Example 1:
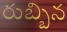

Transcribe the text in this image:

రుబ్బిన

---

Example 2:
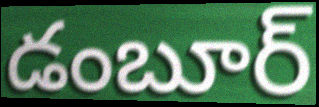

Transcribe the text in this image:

డంబూర్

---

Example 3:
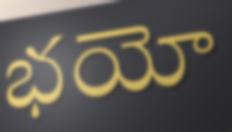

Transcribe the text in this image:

భయో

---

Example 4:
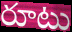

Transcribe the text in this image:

రూటు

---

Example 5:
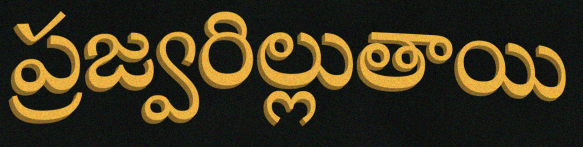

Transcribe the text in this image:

ప్రజ్వరిల్లుతాయి